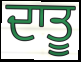
ਦਾਤੂ